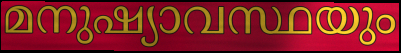
മനുഷ്യാവസ്ഥയും